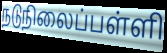
நடுநிலைப்பள்ளி